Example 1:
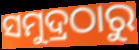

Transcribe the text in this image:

ସମୁଦ୍ରଠାରୁ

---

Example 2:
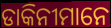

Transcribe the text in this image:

ଡାକିନୀମାନେ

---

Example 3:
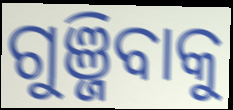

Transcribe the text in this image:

ଗୁଞ୍ଜିବାକୁ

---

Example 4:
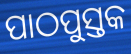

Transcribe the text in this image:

ପାଠପୁସ୍ତକ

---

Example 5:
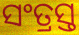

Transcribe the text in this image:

ସଂତ୍ରସ୍ତ